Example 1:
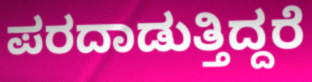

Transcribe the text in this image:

ಪರದಾಡುತ್ತಿದ್ದರೆ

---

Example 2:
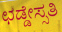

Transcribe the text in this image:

ಛಡ್ಡೇಸ್ಸತಿ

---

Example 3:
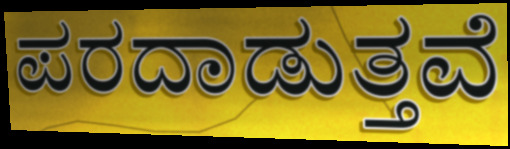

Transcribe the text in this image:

ಪರದಾಡುತ್ತವೆ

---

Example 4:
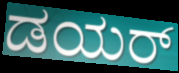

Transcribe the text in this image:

ಡಯರ್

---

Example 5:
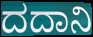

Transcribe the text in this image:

ದದಾನಿ